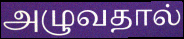
அழுவதால்